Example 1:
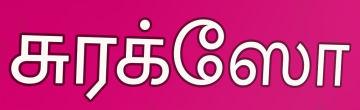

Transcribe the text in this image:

சுரக்ஸோ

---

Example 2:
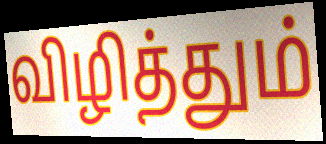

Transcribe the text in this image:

விழித்தும்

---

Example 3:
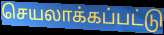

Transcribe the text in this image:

செயலாக்கப்பட்டு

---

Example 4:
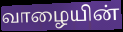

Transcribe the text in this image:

வாழையின்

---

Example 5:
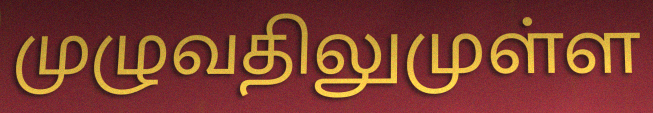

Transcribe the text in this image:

முழுவதிலுமுள்ள